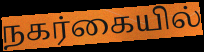
நகர்கையில்